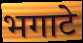
भगाटे